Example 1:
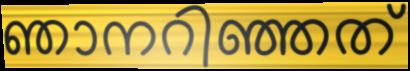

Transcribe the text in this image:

ഞാനറിഞ്ഞത്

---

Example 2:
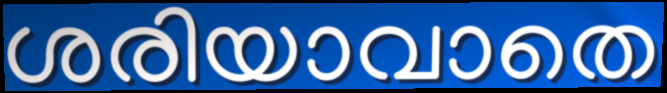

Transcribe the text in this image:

ശരിയാവാതെ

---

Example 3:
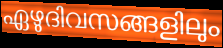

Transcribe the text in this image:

ഏഴുദിവസങ്ങളിലും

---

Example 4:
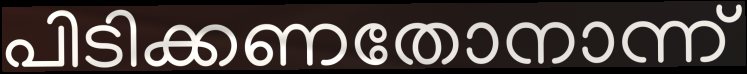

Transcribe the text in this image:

പിടിക്കണതോനാന്ന്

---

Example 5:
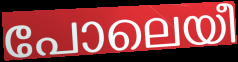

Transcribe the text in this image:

പോലെയീ